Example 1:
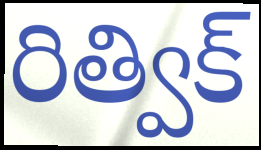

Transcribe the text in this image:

రిత్విక్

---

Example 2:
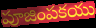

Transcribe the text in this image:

పూజింపకయు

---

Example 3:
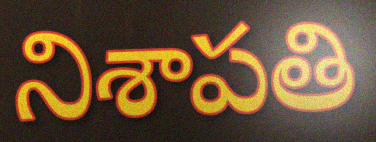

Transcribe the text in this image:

నిశాపతి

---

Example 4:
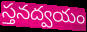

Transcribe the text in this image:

స్తనద్వయం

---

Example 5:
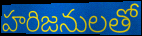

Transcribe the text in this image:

హరిజనులతో